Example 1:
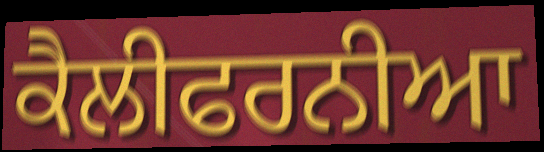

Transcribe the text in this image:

ਕੈਲੀਫਰਨੀਆ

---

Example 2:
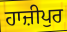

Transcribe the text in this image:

ਹਾਜ਼ੀਪੁਰ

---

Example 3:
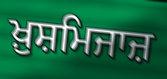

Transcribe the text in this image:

ਖ਼ੁਸ਼ਮਿਜਾਜ਼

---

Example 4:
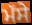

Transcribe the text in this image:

ਮੱਸੇ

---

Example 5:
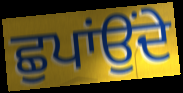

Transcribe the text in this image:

ਛੁਪਾਂਉਂਦੇ